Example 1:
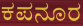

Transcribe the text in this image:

ಕಪನೂರ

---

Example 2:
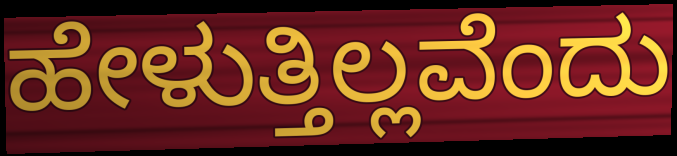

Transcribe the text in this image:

ಹೇಳುತ್ತಿಲ್ಲವೆಂದು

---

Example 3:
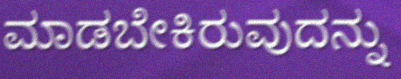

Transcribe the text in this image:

ಮಾಡಬೇಕಿರುವುದನ್ನು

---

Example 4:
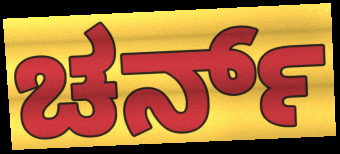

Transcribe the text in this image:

ಚರ್ನ್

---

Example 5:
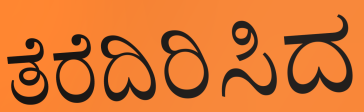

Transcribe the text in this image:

ತೆರೆದಿರಿಸಿದ